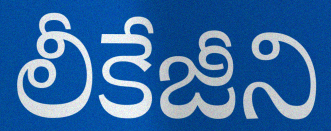
లీకేజీని